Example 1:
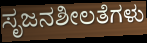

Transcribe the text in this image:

ಸೃಜನಶೀಲತೆಗಳು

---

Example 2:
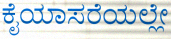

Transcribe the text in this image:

ಕೈಯಾಸರೆಯಲ್ಲೇ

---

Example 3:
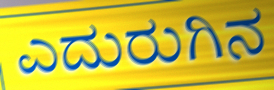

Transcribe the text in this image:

ಎದುರುಗಿನ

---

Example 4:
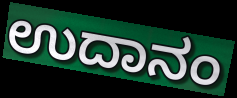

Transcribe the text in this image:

ಉದಾನಂ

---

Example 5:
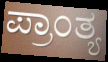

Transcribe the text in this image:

ಪ್ರಾಂತ್ಯ